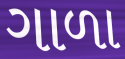
ગાળા